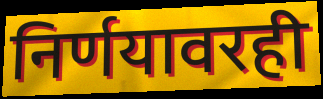
निर्णयावरही